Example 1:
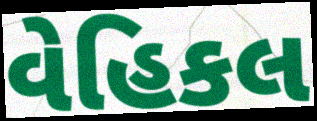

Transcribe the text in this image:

વેહિકલ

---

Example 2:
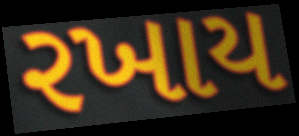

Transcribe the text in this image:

રખાય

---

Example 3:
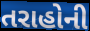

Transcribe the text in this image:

તરાહોની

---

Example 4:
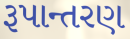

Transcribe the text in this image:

રૂપાન્તરણ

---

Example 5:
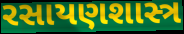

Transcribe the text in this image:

રસાયણશાસ્ત્ર